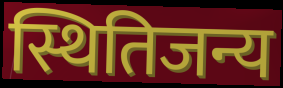
स्थितिजन्य